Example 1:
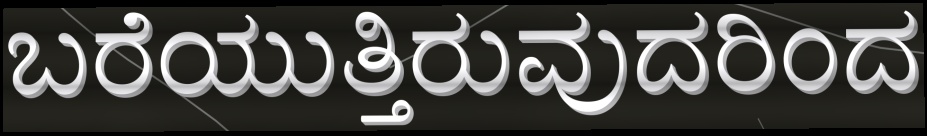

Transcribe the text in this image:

ಬರೆಯುತ್ತಿರುವುದರಿಂದ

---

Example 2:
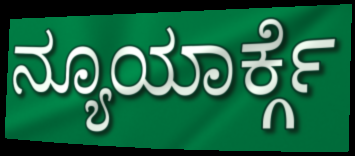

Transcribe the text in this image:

ನ್ಯೂಯಾರ್ಕ್ಗೆ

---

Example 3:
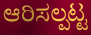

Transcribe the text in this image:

ಆರಿಸಲ್ಪಟ್ಟ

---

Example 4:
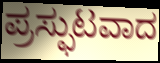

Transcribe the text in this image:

ಪ್ರಸ್ಫುಟವಾದ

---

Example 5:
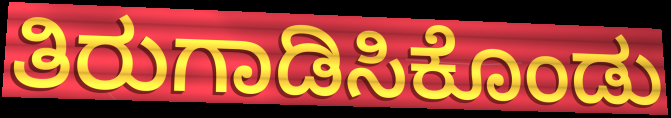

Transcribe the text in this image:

ತಿರುಗಾಡಿಸಿಕೊಂಡು